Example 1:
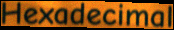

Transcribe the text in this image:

Hexadecimal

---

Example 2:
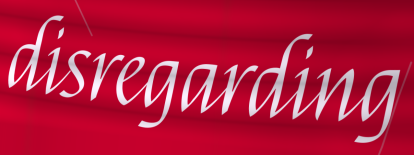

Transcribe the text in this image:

disregarding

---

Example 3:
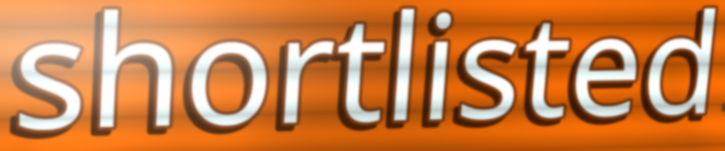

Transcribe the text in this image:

shortlisted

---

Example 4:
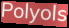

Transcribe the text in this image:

Polyols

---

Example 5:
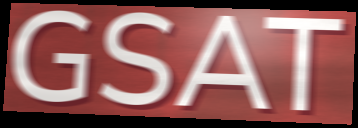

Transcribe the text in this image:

GSAT